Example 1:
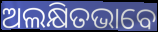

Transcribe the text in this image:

ଅଲକ୍ଷିତଭାବେ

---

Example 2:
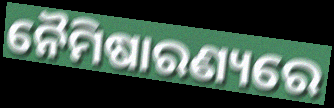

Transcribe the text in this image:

ନୈମିଷାରଣ୍ୟରେ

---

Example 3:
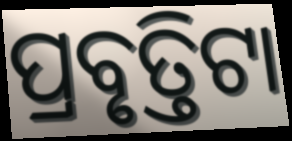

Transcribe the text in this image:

ପ୍ରବୃତ୍ତିଟା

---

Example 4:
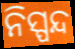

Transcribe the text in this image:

ନିସ୍ପନ୍ଦ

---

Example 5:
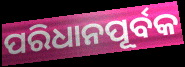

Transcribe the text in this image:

ପରିଧାନପୂର୍ବକ